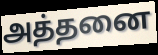
அத்தனை